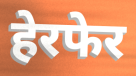
हेरफेर